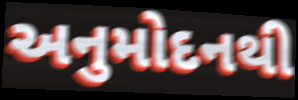
અનુમોદનથી